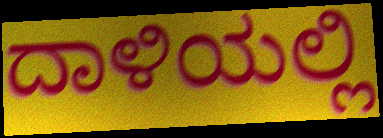
ದಾಳಿಯಲ್ಲಿ